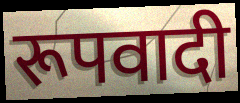
रूपवादी